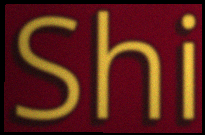
Shi